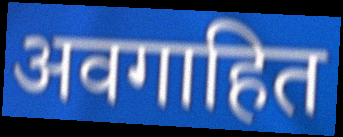
अवगाहित